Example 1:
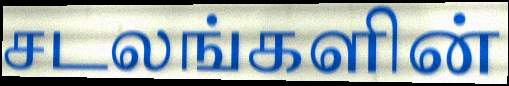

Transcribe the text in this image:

சடலங்களின்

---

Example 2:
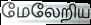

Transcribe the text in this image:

மேலேறிய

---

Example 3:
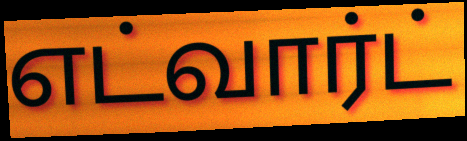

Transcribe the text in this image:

எட்வார்ட்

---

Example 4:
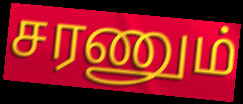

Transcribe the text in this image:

சரணும்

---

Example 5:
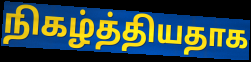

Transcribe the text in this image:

நிகழ்த்தியதாக